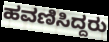
ಹವಣಿಸಿದ್ದರು